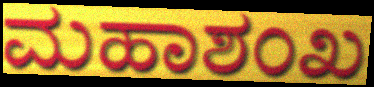
ಮಹಾಶಂಖ